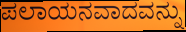
ಪಲಾಯನವಾದವನ್ನು